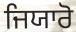
ਜਿਯਾਰੋ